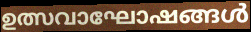
ഉത്സവാഘോഷങ്ങൾ